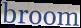
broom